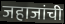
जहाजांची